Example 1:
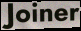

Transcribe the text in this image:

Joiner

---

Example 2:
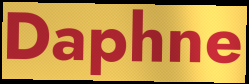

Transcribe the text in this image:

Daphne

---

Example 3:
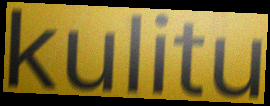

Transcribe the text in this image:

kulitu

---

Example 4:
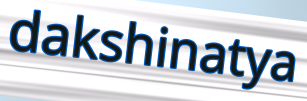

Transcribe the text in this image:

dakshinatya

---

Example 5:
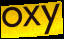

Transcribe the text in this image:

oxy